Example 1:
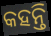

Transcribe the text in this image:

କହନ୍ତି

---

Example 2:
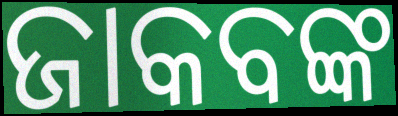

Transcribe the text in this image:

ଜାକବଙ୍କ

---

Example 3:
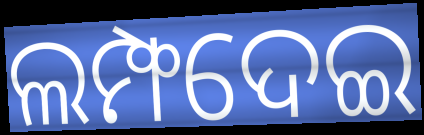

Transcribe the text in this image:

ଲମ୍ଫଦେଇ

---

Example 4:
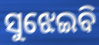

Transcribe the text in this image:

ସୁଝେଇବି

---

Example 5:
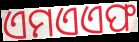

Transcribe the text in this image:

ଏମଏଏଫ